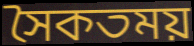
সৈকতময়